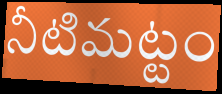
నీటిమట్టం